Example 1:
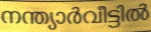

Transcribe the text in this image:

നന്ത്യാർവീട്ടിൽ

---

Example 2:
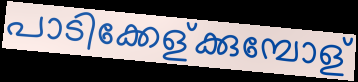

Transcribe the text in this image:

പാടിക്കേള്ക്കുമ്പോള്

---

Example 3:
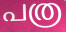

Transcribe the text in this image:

പത്ര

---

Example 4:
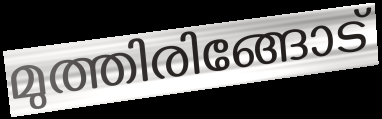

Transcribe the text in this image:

മുത്തിരിങ്ങോട്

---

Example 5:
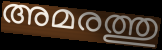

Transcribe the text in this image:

അമരത്തു